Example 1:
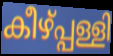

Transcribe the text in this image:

കീഴ്പ്പള്ളി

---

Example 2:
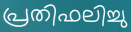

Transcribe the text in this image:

പ്രതിഫലിച്ചു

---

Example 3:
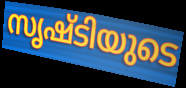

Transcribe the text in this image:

സൃഷ്ടിയുടെ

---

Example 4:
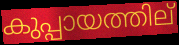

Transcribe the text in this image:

കുപ്പായത്തില്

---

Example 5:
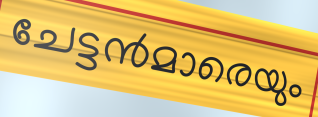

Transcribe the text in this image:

ചേട്ടൻമാരെയും